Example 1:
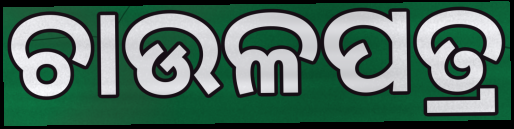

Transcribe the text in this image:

ଚାଉଳପତ୍ର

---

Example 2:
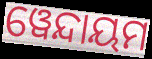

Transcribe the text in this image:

ୱେନ୍ଦାୟମ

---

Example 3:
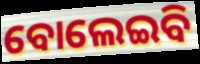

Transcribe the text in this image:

ବୋଲେଇବି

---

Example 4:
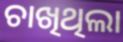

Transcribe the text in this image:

ଚାଖିଥିଲା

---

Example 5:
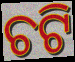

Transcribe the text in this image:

ଚଟି